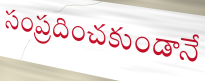
సంప్రదించకుండానే